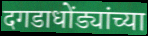
दगडाधोंड्यांच्या